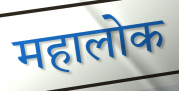
महालोक